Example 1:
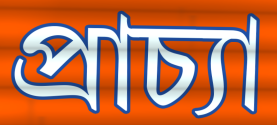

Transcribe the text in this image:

প্ৰাচ্যা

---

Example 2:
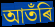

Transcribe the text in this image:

আতঁৰি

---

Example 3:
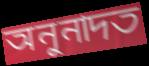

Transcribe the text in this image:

অনুনাদত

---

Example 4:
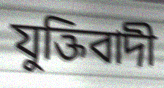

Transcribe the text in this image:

যুক্তিবাদী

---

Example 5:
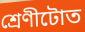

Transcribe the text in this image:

শ্ৰেণীটোত